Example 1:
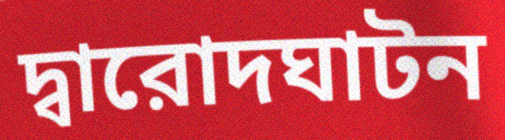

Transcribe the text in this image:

দ্বারোদঘাটন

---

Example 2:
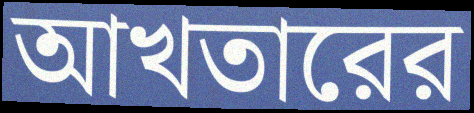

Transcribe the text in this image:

আখতারের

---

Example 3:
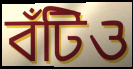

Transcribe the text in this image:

বঁটিও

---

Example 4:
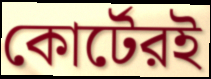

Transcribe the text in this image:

কোর্টেরই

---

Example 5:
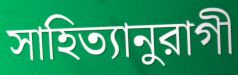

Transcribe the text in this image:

সাহিত্যানুরাগী